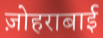
ज़ोहराबाई